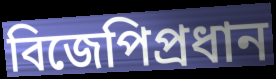
বিজেপিপ্রধান